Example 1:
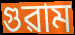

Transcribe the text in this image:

গুৱাম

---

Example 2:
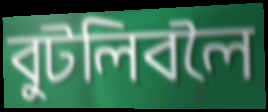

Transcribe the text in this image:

বুটলিবলৈ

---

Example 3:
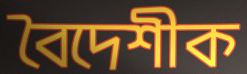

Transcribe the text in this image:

বৈদেশীক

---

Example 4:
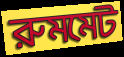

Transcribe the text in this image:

ৰুমমেট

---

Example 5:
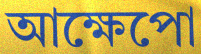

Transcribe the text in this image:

আক্ষেপো